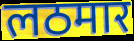
लठमार